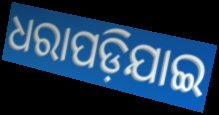
ଧରାପଡ଼ିଯାଇ